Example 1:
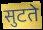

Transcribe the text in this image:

सुटते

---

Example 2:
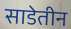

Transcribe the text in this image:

साडेतीन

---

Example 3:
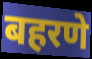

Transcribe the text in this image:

बहरणे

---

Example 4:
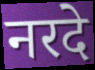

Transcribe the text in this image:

नरदे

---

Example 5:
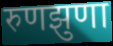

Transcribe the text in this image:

रुणझुणा